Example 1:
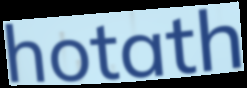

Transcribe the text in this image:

hotath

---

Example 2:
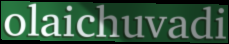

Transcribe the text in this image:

olaichuvadi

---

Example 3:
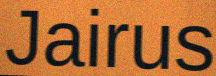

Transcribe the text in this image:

Jairus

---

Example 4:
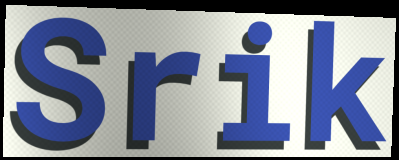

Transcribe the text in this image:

Srik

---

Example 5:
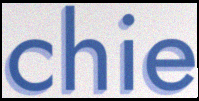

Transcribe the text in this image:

chie